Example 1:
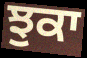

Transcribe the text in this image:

ਝੁਕਾ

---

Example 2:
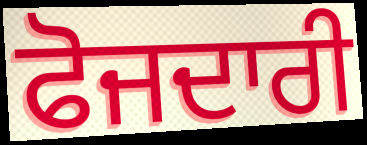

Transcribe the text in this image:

ਫੋਜਦਾਰੀ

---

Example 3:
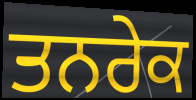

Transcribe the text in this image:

ਤਨਰੇਕ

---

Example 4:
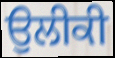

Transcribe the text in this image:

ਉਲੀਕੀ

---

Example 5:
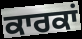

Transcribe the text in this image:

ਕਾਰਕਾਂ